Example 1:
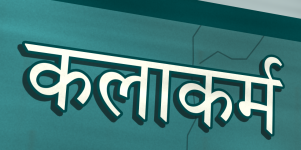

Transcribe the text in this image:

कलाकर्म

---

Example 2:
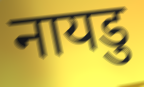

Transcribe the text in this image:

नायडु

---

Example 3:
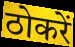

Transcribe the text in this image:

ठोकरें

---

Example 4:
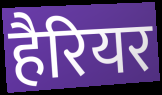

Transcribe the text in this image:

हैरियर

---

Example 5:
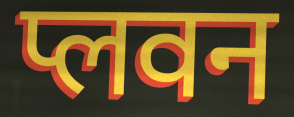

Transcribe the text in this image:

प्लवन